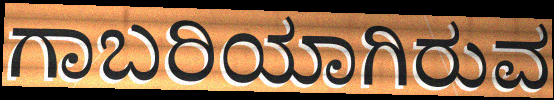
ಗಾಬರಿಯಾಗಿರುವ